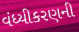
વંધ્યીકરણની